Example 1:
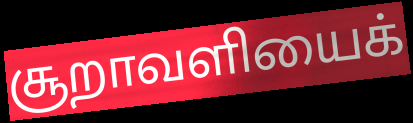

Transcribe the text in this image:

சூறாவளியைக்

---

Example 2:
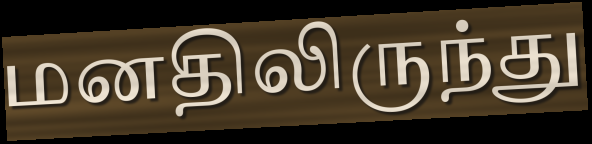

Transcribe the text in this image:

மனதிலிருந்து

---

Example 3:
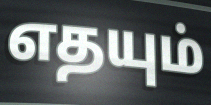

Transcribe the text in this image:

எதயும்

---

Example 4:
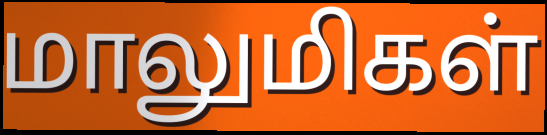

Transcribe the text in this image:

மாலுமிகள்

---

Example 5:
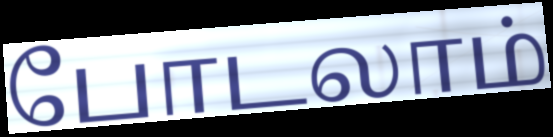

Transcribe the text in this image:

போடலாம்